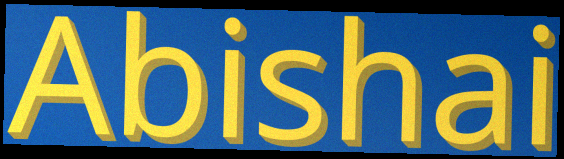
Abishai